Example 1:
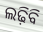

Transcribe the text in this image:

ଲଢ଼ିବି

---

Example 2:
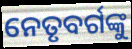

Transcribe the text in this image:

ନେତୃବର୍ଗଙ୍କୁ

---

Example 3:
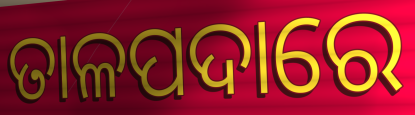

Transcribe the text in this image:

ତାଳପଦାରେ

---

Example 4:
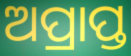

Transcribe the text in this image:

ଅପ୍ରାପ୍ତ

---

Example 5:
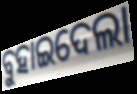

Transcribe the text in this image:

ବୁହାଇଦେଲା